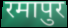
रमापुर